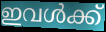
ഇവൾക്ക്